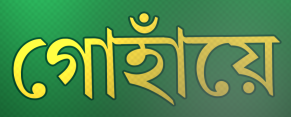
গোহাঁয়ে